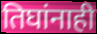
तिघांनाही